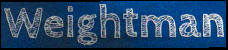
Weightman